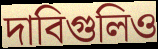
দাবিগুলিও